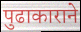
पुढाकाराने